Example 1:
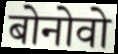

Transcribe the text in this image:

बोनोवो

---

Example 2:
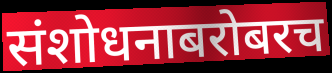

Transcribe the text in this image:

संशोधनाबरोबरच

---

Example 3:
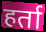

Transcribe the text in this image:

हर्ता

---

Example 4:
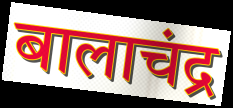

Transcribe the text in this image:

बालाचंद्र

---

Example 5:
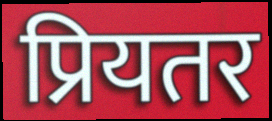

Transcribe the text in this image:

प्रियतर